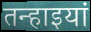
तन्हाइयां